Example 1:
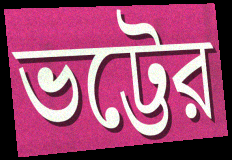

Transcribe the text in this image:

ভট্টের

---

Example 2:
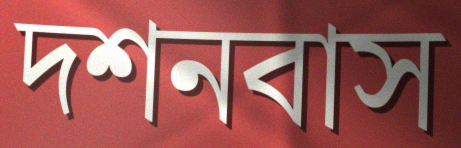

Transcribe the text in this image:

দশনবাস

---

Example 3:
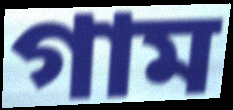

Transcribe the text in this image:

গাম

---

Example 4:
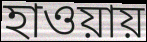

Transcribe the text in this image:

হাওয়ায়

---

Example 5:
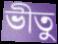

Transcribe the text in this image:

ভীতু